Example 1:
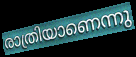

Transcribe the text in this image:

രാത്രിയാണെന്നു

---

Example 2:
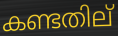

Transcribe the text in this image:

കണ്ടതില്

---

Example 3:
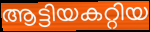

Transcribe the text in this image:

ആട്ടിയകറ്റിയ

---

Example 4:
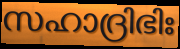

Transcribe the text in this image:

സഹാദ്രിഭിഃ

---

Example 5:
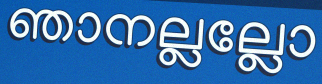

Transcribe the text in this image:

ഞാനല്ലല്ലോ